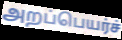
அறப்பெயர்ச்